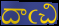
దాఁచి